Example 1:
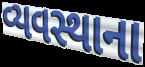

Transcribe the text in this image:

વ્યવસ્થાના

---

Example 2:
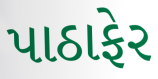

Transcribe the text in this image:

પાઠાફેર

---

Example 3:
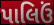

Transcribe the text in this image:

પાલિઉં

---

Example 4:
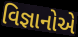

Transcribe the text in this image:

વિજ્ઞાનોએ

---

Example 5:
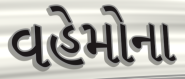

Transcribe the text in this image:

વહેમોના